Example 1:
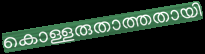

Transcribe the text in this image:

കൊള്ളരുതാത്തതായി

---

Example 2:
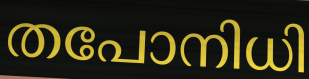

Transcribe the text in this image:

തപോനിധി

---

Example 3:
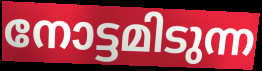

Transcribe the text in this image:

നോട്ടമിടുന്ന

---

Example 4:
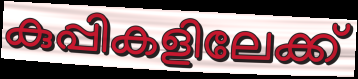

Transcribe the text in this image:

കുപ്പികളിലേക്ക്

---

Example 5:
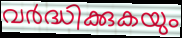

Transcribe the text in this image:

വർദ്ധിക്കുകയും